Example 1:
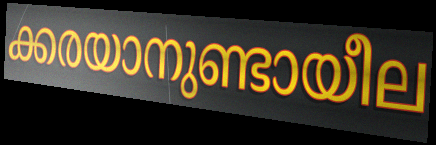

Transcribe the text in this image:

ക്കരയാനുണ്ടായീല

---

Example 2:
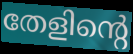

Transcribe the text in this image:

തേളിന്റെ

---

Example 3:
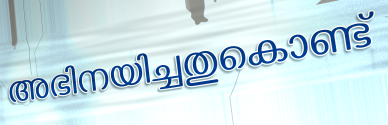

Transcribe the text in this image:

അഭിനയിച്ചതുകൊണ്ട്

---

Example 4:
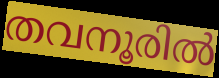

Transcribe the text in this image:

തവനൂരിൽ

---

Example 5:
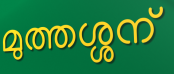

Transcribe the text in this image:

മുത്തശ്ശന്